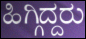
ಹಿಗ್ಗಿದ್ದರು